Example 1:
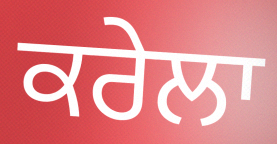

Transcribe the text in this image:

ਕਰੇਲਾ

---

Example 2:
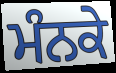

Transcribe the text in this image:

ਮੰਨਕੇ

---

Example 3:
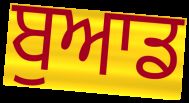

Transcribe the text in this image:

ਬੁਆਡ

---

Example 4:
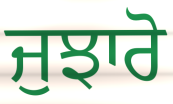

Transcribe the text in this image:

ਜੁਝਾਰੋ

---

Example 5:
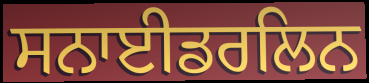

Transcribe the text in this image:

ਸਨਾਈਡਰਲਿਨ